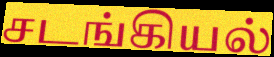
சடங்கியல்